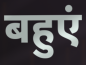
बहुएं